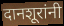
दानशूरांनी